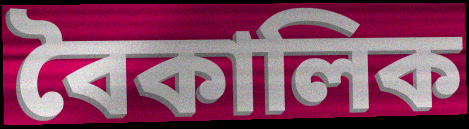
বৈকালিক